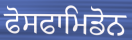
ਫੋਸਫਾਮਿਡੋਨ